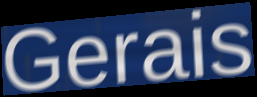
Gerais